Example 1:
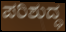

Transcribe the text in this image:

ಪರಿಶುದ್ಧ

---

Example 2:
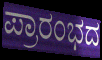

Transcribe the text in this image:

ಪ್ರಾರಂಭದ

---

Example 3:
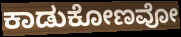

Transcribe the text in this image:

ಕಾಡುಕೋಣವೋ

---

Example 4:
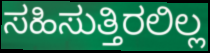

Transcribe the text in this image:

ಸಹಿಸುತ್ತಿರಲಿಲ್ಲ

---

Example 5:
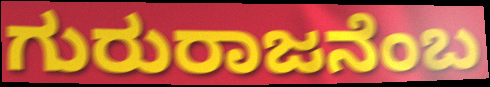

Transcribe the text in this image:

ಗುರುರಾಜನೆಂಬ